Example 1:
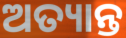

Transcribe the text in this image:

ଅତ୍ୟାନ୍ତ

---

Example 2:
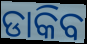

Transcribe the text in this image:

ଡାକିବ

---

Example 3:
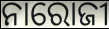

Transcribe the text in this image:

ନାରୋଜୀ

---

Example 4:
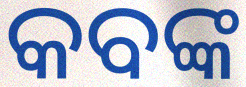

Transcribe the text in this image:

କବଙ୍କ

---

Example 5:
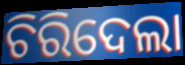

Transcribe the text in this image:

ଚିରିଦେଲା